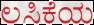
ಲಸಿಕೆಯ